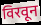
विरवून